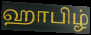
ஹாபிழ்